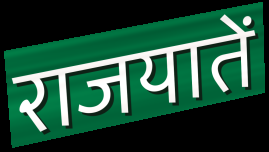
राजयातें